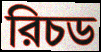
রিচড